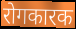
रोगकारक